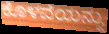
ಕೊಳವೆಯನ್ನು